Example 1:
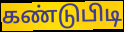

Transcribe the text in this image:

கண்டுபிடி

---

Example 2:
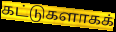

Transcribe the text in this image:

கட்டுகளாகக்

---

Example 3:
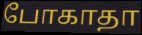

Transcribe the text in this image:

போகாதா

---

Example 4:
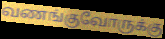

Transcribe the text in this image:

வணங்குவோருக்கு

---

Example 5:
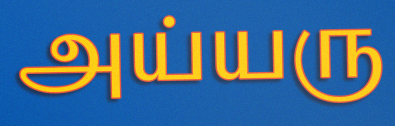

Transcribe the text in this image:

அய்யரு